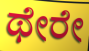
ಥೇರೇ